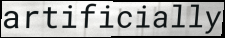
artificially